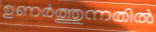
ഉണർത്തുന്നതിൽ